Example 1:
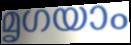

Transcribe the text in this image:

മൃഗയാം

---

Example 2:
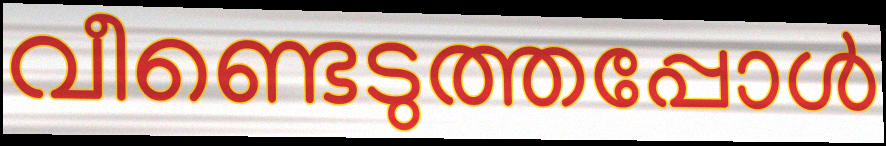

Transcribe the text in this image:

വീണ്ടെടുത്തപ്പോൾ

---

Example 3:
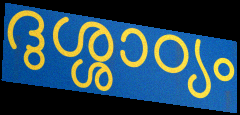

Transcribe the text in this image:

ദുശ്ശാഠ്യം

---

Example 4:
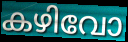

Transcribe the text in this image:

കഴിവോ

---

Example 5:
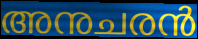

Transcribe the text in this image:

അനുചരൻ